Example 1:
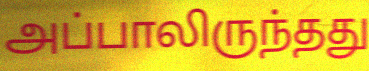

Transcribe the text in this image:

அப்பாலிருந்தது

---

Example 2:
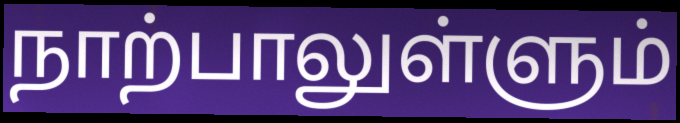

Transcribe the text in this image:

நாற்பாலுள்ளும்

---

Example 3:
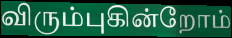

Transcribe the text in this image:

விரும்புகின்றோம்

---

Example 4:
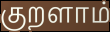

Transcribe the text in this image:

குறளாம்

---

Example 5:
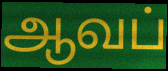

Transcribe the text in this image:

ஆவப்